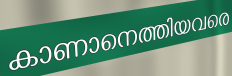
കാണാനെത്തിയവരെ